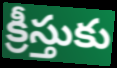
క్రీస్తుకు